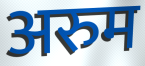
अरुम